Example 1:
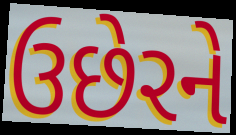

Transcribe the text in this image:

ઉછેરને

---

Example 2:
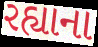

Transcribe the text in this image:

રહ્યાના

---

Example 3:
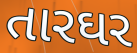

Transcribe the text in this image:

તારઘર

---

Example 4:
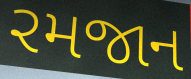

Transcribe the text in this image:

રમજાન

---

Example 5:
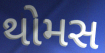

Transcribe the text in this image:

થોમસ